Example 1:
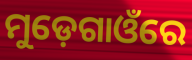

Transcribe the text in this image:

ମୁଡ଼େଗାଓଁରେ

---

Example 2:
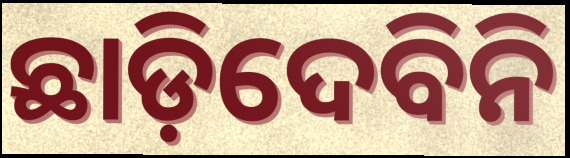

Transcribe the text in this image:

ଛାଡ଼ିଦେବିନି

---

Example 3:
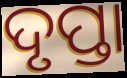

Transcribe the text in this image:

ଦୃପ୍ତା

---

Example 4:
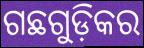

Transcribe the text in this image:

ଗଛଗୁଡ଼ିକର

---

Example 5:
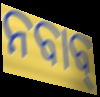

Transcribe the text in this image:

ନବାବ୍